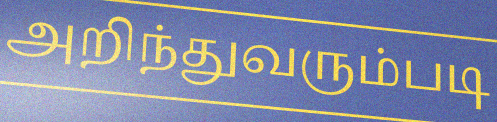
அறிந்துவரும்படி